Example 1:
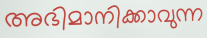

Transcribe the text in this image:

അഭിമാനിക്കാവുന്ന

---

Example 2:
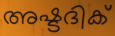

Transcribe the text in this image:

അഷ്ടദിക്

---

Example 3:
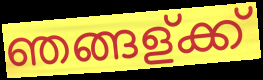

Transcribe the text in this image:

ഞങ്ങള്ക്ക്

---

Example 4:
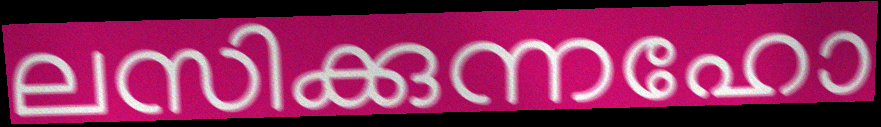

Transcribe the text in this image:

ലസിക്കുന്നഹോ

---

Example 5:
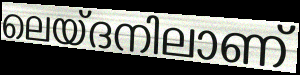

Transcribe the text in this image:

ലെയ്ദനിലാണ്